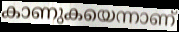
കാണുകയെന്നാണ്